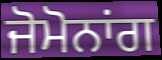
ਜੋਮੋਨਾਂਗ